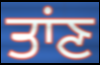
ਤਾਂਣ